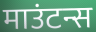
माउंटन्स